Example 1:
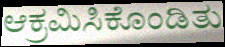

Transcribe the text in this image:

ಆಕ್ರಮಿಸಿಕೊಂಡಿತು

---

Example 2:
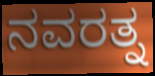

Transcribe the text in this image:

ನವರತ್ನ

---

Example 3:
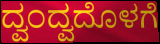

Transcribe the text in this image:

ದ್ವಂದ್ವದೊಳಗೆ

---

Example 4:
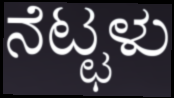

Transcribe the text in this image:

ನೆಟ್ಟಳು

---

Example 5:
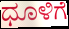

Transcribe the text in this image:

ಧೂಳಿಗೆ